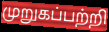
முறுகப்பற்றி